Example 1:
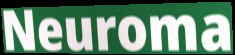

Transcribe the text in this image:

Neuroma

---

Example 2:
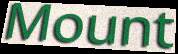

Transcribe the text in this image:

Mount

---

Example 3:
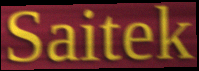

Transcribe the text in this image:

Saitek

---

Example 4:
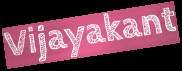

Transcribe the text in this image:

Vijayakant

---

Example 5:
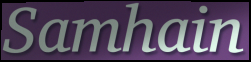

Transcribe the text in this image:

Samhain